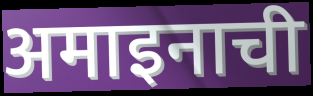
अमाइनाची